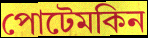
পোটেমকিন